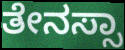
ತೇನಸ್ಸಾ